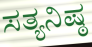
ಸತ್ಯನಿಷ್ಠ